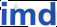
imd